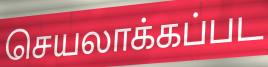
செயலாக்கப்பட